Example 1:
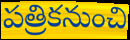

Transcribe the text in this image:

పత్రికనుంచి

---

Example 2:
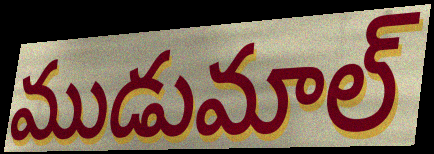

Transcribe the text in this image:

ముడుమాల్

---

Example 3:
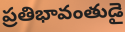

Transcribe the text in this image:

ప్రతిభావంతుడై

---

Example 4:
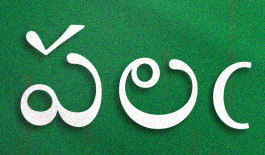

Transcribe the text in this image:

పలఁ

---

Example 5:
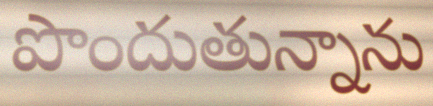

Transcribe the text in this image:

పొందుతున్నాను